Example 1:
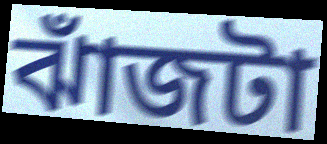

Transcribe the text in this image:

ঝাঁজটা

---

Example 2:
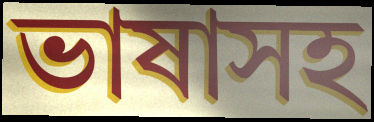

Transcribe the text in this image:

ভাষাসহ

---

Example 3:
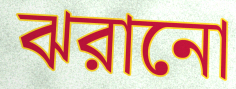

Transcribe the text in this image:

ঝরানো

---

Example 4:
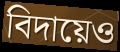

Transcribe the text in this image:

বিদায়েও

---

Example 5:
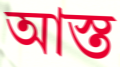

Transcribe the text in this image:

আস্ত